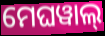
ମେଘୱାଲ୍